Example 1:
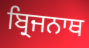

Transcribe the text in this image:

ਬ੍ਰਿਜਨਾਥ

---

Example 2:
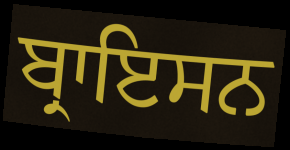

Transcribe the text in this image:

ਬ੍ਰਾਇਸਨ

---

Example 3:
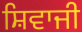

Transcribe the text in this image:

ਸ਼ਿਵਾਜੀ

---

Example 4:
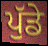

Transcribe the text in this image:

ਪੁੱਡੇ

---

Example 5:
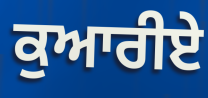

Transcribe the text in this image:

ਕੁਆਰੀਏ